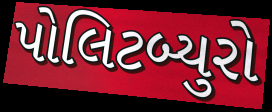
પોલિટબ્યુરો